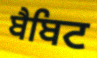
ਬੈਬਿਟ